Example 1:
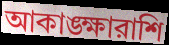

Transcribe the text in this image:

আকাঙ্ক্ষারাশি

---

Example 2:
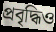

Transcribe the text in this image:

প্রবৃদ্ধিও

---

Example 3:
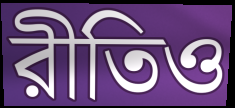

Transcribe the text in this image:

রীতিও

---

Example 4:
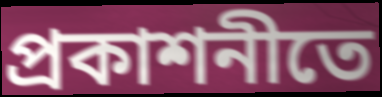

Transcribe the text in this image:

প্রকাশনীতে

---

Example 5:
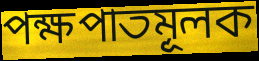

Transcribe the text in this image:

পক্ষপাতমূলক